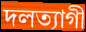
দলত্যাগী